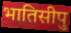
भातिसीपु